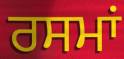
ਰਸਮਾਂ